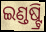
ଇଣ୍ଡଷ୍ଟ୍ରି